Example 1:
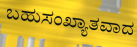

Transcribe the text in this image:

ಬಹುಸಂಖ್ಯಾತವಾದ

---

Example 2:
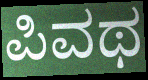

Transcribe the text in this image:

ಪಿವಥ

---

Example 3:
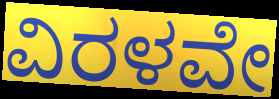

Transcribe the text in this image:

ವಿರಳವೇ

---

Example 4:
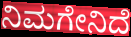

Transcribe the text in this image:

ನಿಮಗೇನಿದೆ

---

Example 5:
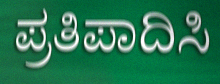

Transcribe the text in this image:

ಪ್ರತಿಪಾದಿಸಿ